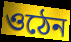
ওঠেন